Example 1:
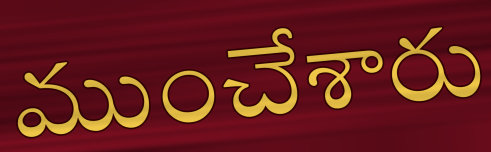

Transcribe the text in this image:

ముంచేశారు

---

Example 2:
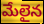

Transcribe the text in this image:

మేలైన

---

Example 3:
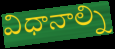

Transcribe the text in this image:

విధానాల్ని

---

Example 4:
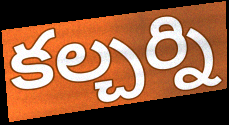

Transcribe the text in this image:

కల్చర్ని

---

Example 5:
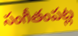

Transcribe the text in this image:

సంగీతంపట్ల